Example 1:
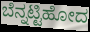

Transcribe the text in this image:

ಬೆನ್ನಟ್ಟಿಹೋದ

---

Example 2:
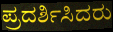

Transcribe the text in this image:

ಪ್ರದರ್ಶಿಸಿದರು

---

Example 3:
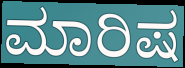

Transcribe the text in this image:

ಮಾರಿಷ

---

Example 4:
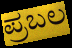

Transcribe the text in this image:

ಪ್ರಬಲ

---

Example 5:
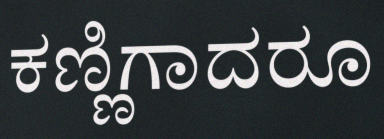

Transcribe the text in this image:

ಕಣ್ಣಿಗಾದರೂ